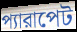
প্যারাপেট